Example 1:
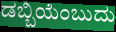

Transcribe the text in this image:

ಡಬ್ಬಿಯೆಂಬುದು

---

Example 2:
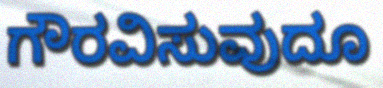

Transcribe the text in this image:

ಗೌರವಿಸುವುದೂ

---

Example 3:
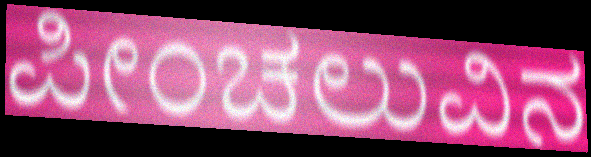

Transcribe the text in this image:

ಪೀಂಚಲುವಿನ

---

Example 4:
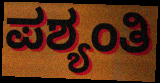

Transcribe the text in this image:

ಪಶ್ಯಂತಿ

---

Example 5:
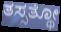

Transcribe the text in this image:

ತಸ್ಸತ್ಥೋ